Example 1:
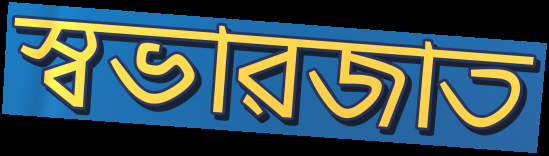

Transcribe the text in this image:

স্বভাৱজাত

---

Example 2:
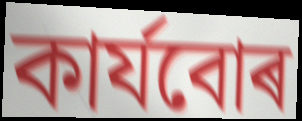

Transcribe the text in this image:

কাৰ্যবোৰ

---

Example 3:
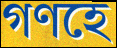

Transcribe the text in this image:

গণহে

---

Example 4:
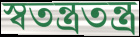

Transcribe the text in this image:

স্বতন্ত্ৰতন্ত্ৰ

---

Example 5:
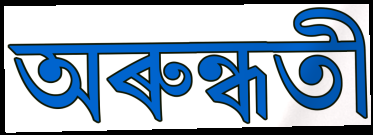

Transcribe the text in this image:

অৰুন্ধতী